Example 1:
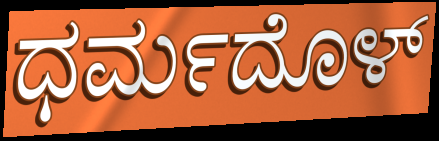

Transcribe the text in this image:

ಧರ್ಮದೊಳ್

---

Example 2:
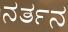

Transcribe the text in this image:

ನರ್ತನ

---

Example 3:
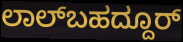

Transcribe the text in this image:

ಲಾಲ್‌ಬಹದ್ದೂರ್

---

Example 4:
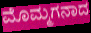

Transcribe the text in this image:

ಮೊಮ್ಮಗನಾದ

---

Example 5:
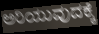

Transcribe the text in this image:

ಅರಿಯುವುದಕ್ಕೆ